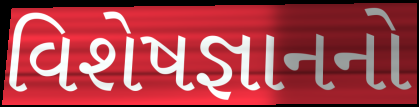
વિશેષજ્ઞાનનો